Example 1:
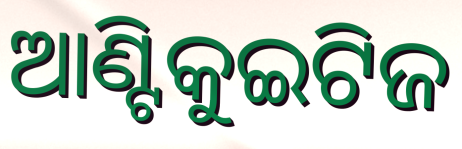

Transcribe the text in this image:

ଆଣ୍ଟିକୁଇଟିଜ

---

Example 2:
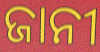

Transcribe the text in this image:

ଜାନୀ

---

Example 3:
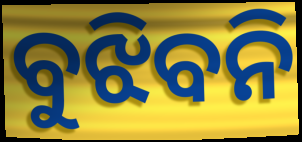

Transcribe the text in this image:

ବୁଝିବନି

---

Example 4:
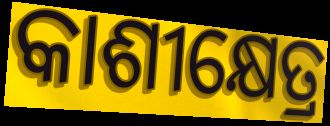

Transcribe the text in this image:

କାଶୀକ୍ଷେତ୍ର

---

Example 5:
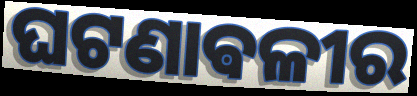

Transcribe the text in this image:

ଘଟଣାଵଳୀର